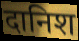
दानिश